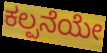
ಕಲ್ಪನೆಯೇ